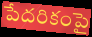
పేదరికంపై